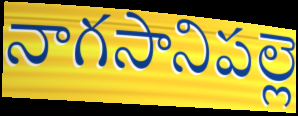
నాగసానిపల్లె